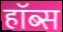
हॉब्स